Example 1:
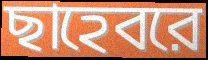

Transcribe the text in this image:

ছাহেবরে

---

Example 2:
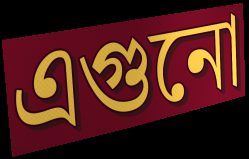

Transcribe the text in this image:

এগুনো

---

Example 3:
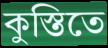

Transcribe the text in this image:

কুস্তিতে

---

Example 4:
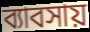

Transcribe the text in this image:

ব্যাবসায়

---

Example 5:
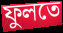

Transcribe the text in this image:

ফুলতে